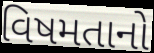
વિષમતાનો